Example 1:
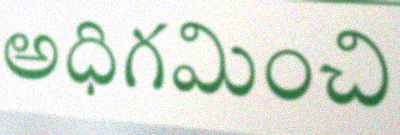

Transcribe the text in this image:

అధిగమించి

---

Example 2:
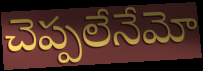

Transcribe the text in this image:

చెప్పలేనేమో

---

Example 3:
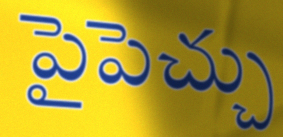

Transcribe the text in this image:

పైపెచ్చు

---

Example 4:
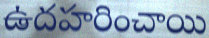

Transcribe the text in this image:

ఉదహరించాయి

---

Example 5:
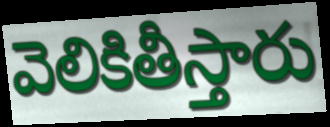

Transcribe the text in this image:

వెలికితీస్తారు